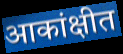
आकांक्षीत